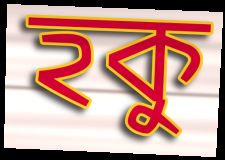
হকু